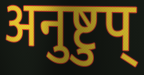
अनुष्टुप्